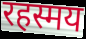
रहस्मय